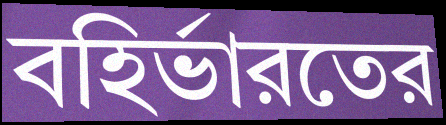
বহির্ভারতের